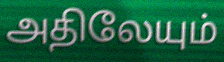
அதிலேயும்